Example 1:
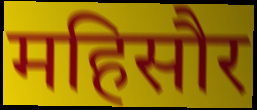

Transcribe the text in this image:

महिसौर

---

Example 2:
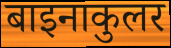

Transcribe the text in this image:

बाइनाकुलर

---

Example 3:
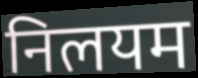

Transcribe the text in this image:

निलयम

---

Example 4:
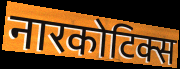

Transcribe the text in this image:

नारकोटिक्स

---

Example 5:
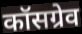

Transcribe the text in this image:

कॉसग्रेव